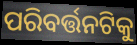
ପରିବର୍ତ୍ତନଟିକୁ